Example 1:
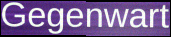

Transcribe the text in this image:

Gegenwart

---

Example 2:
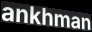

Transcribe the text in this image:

ankhman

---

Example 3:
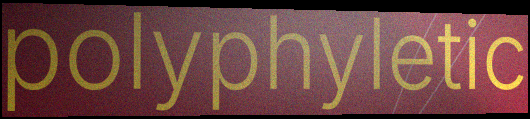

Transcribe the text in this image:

polyphyletic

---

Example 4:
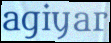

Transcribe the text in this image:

agiyar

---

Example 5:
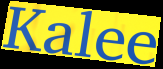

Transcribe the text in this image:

Kalee